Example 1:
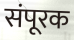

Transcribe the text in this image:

संपूरक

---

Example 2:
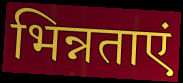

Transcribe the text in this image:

भिन्नताएं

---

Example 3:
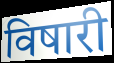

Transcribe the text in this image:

विषारी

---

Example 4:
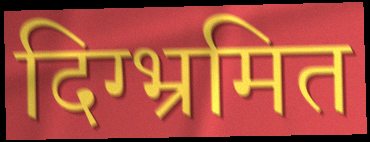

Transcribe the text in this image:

दिग्भ्रमित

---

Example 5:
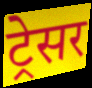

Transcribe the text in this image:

ट्रेसर